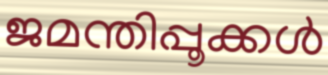
ജമന്തിപ്പൂക്കൾ